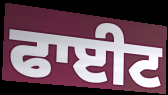
ਫਾਈਟ